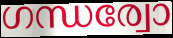
ഗന്ധര്വോ